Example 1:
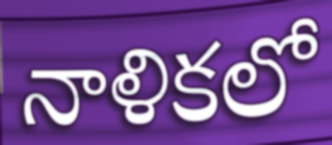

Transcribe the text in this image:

నాళికలో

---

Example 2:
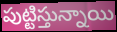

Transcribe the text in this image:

పుట్టిస్తున్నాయి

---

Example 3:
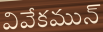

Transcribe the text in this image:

వివేకమున్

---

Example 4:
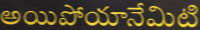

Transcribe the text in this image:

అయిపోయానేమిటి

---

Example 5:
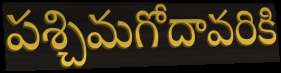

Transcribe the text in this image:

పశ్చిమగోదావరికి